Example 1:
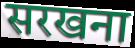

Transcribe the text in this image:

सरखना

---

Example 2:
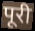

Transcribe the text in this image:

पूरी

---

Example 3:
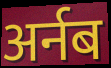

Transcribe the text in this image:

अर्नब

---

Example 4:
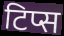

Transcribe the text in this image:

टिप्स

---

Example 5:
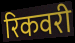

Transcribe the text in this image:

रिकवरी